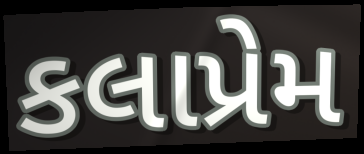
કલાપ્રેમ